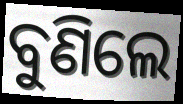
ବୁଣିଲେ